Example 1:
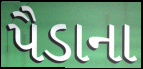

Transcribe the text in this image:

પૈડાના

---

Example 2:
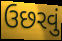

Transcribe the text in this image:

ઉછરવું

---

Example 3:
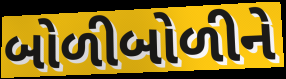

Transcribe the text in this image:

બોળીબોળીને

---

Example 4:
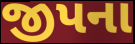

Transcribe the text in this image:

જીપના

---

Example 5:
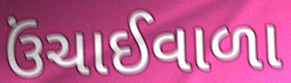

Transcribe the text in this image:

ઉંચાઈવાળા